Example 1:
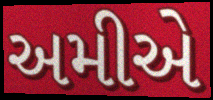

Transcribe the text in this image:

અમીએ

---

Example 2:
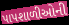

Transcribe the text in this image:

પાપશાળીઓની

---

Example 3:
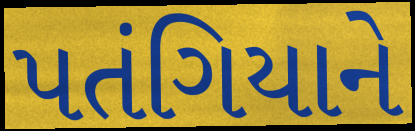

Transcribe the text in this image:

પતંગિયાને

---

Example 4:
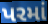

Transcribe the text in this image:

પરમાં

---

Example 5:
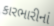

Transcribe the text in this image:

કારભારીનાં